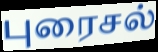
புரைசல்